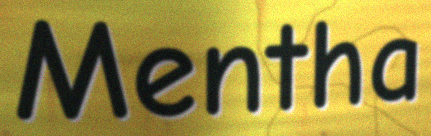
Mentha